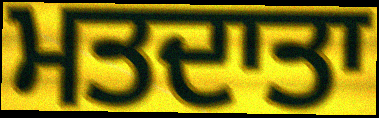
ਮਤਦਾਤਾ